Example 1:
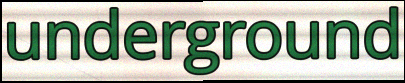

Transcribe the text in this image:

underground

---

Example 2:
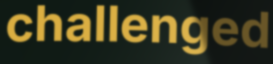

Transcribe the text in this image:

challenged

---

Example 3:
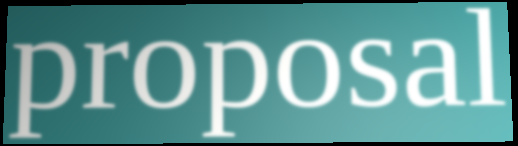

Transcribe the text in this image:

proposal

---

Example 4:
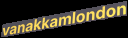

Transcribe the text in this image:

vanakkamlondon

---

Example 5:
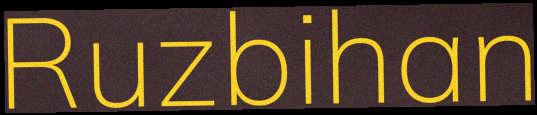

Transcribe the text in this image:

Ruzbihan